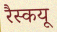
रैस्कयू